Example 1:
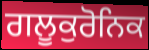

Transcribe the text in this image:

ਗਲੂਕੁਰੋਨਿਕ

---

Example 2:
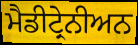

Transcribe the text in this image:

ਮੈਡੀਟ੍ਰੇਨੀਅਨ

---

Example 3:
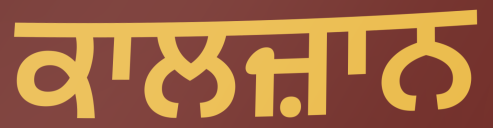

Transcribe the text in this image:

ਕਾਲਜ਼ਾਨ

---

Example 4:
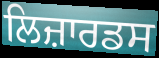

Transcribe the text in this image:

ਲਿਜ਼ਾਰਡਸ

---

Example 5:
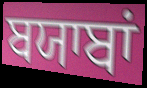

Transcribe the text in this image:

ਬਯਾਬਾਂ